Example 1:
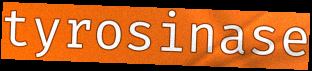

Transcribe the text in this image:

tyrosinase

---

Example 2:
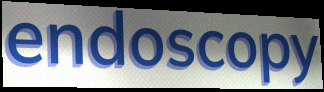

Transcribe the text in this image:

endoscopy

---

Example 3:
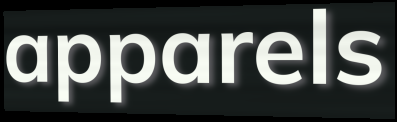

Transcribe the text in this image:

apparels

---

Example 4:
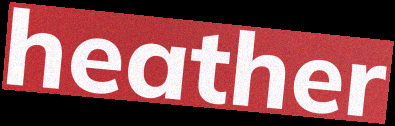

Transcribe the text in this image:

heather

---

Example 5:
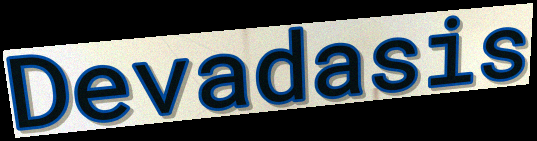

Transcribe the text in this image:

Devadasis